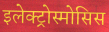
इलेक्ट्रोस्मोसिस